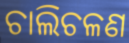
ଚାଲିଚଳଣ